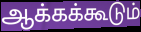
ஆக்கக்கூடும்